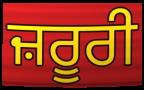
ਜ਼ਰੂਰੀ